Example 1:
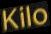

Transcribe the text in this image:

Kilo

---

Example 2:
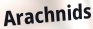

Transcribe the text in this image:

Arachnids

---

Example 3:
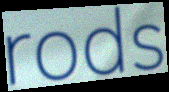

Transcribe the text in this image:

rods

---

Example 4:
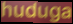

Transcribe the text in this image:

huduga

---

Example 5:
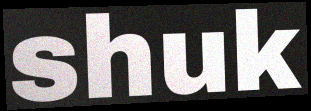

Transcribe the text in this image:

shuk